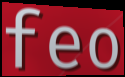
feo